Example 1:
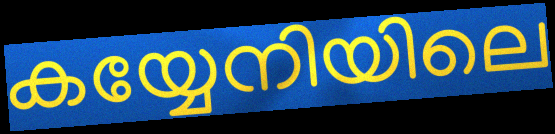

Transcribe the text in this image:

കയ്യേനിയിലെ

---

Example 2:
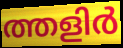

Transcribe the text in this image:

ത്തളിർ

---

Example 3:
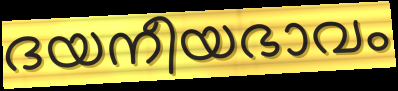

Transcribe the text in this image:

ദയനീയഭാവം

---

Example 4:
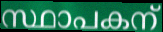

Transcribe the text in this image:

സ്ഥാപകന്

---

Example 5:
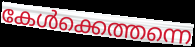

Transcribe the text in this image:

കേൾക്കെത്തന്നെ